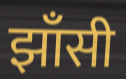
झाँसी